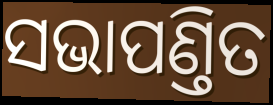
ସଭାପଣ୍ତିତ